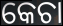
କେଚା